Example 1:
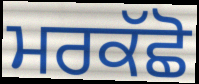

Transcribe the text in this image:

ਮਰਕੱਛੋ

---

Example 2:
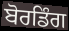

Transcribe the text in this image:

ਬੋਰਡਿੰਗ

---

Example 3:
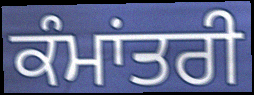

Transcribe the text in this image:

ਕੰਮਾਂਤਰੀ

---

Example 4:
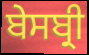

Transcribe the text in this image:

ਬੇਸਬ੍ਰੀ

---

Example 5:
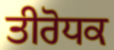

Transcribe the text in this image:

ਤੀਰੋਧਕ